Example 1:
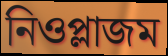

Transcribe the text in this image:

নিওপ্লাজম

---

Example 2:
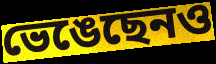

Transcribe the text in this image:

ভেঙেছেনও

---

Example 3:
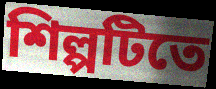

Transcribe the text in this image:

শিল্পটিতে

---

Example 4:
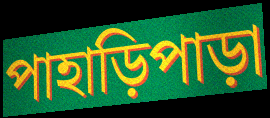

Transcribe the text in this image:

পাহাড়িপাড়া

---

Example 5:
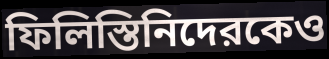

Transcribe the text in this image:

ফিলিস্তিনিদেরকেও